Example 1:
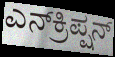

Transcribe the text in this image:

ಎನ್‌ಕ್ರಿಪ್ಷನ್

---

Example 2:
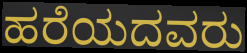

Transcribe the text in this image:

ಹರೆಯದವರು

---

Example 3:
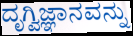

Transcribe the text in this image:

ದೃಗ್ವಿಜ್ಞಾನವನ್ನು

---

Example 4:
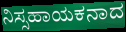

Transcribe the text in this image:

ನಿಸ್ಸಹಾಯಕನಾದ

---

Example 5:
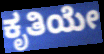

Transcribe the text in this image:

ಕೃತಿಯೇ